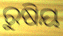
ରୁଷିୟ